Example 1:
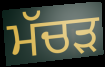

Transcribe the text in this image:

ਮੱਚੜ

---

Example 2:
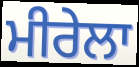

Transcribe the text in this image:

ਮੀਰੇਲਾ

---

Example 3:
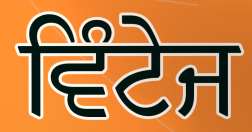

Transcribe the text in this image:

ਵਿੰਟੇਜ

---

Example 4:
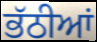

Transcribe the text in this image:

ਭੱਠੀਆਂ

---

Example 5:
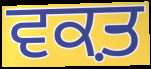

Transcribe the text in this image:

ਵਕ਼ਤ